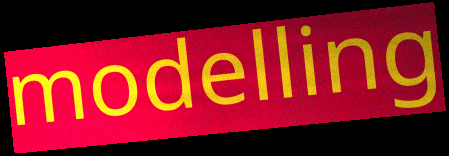
modelling